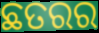
ଛତରର